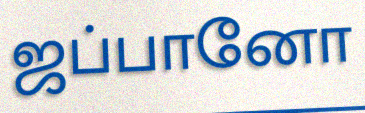
ஜப்பானோ